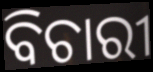
ବିଚାରୀ